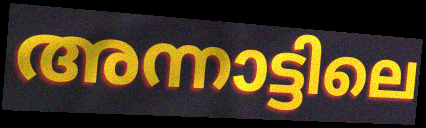
അന്നാട്ടിലെ